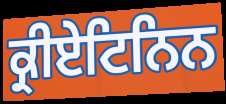
ਕ੍ਰੀਏਟਿਨਿਨ